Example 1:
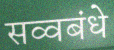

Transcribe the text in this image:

सव्वबंधे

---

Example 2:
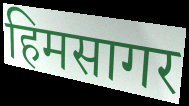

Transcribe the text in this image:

हिमसागर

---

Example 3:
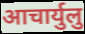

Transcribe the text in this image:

आचार्युलु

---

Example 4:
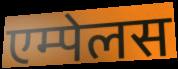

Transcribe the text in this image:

एम्पेलस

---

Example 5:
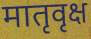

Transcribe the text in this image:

मातृवृक्ष